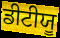
ਡੀਟੀਯੂ